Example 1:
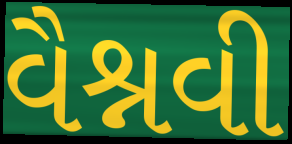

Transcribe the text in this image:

વૈશ્નવી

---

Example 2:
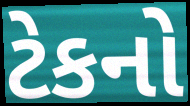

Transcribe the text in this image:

ટેકનો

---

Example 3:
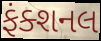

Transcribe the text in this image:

ફંક્શનલ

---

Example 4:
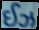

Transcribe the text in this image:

ઈઝ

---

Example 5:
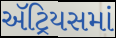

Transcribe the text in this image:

ઍટ્રિયસમાં